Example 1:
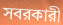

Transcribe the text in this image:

সবরকারী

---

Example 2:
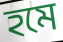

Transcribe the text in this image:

হমে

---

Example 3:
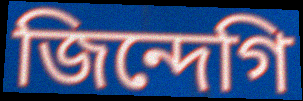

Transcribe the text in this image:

জিন্দেগি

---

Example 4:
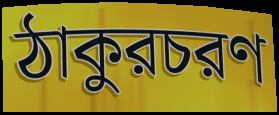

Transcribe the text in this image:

ঠাকুরচরণ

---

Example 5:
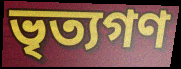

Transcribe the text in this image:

ভৃত্যগণ